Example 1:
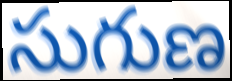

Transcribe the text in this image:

సుగుణ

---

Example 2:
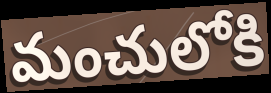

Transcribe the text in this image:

మంచులోకి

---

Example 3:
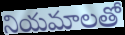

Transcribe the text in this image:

నియమాలతో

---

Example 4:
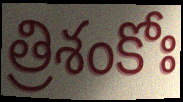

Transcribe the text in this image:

త్రిశంకోః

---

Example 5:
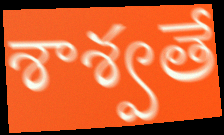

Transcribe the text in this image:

శాశ్వతే